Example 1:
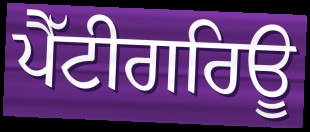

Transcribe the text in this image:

ਪੈੱਟੀਗਰਿਊ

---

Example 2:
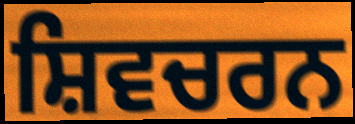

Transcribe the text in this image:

ਸ਼ਿਵਚਰਨ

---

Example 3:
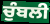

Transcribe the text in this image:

ਚੁੰਬਲੀ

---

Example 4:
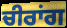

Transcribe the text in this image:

ਚੀਰਾਂਗ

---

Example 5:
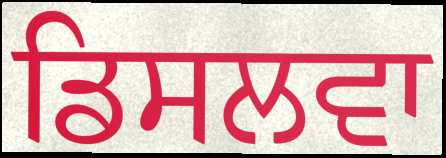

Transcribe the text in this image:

ਡਿਸਲਵਾ